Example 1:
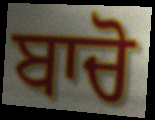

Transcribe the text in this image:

ਬਾਚੋ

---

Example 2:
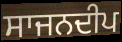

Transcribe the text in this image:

ਸਾਜਨਦੀਪ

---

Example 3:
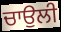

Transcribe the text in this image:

ਚਾਉਲੀ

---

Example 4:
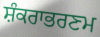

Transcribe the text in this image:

ਸ਼ੰਕਰਾਭਰਣਮ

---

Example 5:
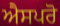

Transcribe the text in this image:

ਐਸਪਰੋ